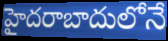
హైదరాబాదులోనే